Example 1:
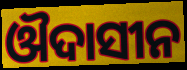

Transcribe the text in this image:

ଔଦାସୀନ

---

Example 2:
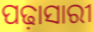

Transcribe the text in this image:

ପଢ଼ାସାରୀ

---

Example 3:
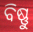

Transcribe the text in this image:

ବିଷ୍ଣୁ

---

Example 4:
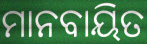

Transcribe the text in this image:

ମାନବାୟିତ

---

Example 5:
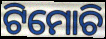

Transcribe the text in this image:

ଟିମୋଚି